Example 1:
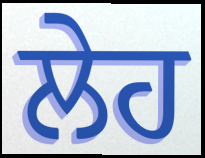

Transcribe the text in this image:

ਲੇਹ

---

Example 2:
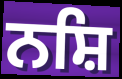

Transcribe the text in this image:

ਨਸ਼ਿ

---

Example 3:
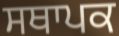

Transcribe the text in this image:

ਸਥਾਪਕ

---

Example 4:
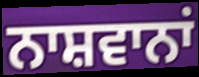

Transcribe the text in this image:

ਨਾਸ਼ਵਾਨਾਂ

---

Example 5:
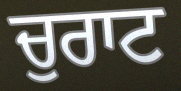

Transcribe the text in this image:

ਚੁਰਾਟ